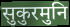
सुकुरमुनि